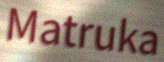
Matruka